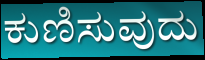
ಕುಣಿಸುವುದು